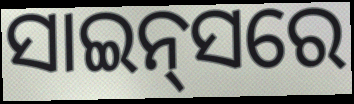
ସାଇନ୍‌ସରେ